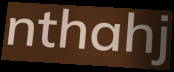
nthahj